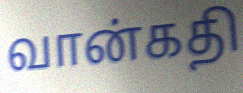
வான்கதி